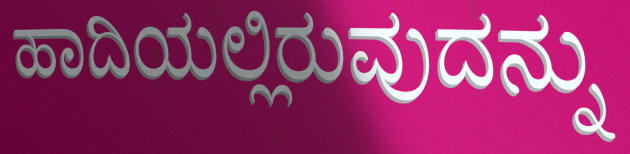
ಹಾದಿಯಲ್ಲಿರುವುದನ್ನು